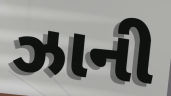
ઝાની